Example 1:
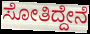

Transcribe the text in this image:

ಸೋತಿದ್ದೇನೆ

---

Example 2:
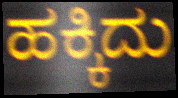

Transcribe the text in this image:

ಹಕ್ಕಿದು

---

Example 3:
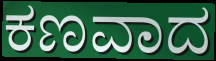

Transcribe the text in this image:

ಕಣವಾದ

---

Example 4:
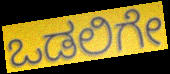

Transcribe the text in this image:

ಒಡಲಿಗೇ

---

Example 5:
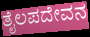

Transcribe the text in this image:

ತೈಲಪದೇವನ